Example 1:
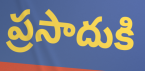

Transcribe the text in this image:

ప్రసాదుకి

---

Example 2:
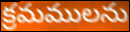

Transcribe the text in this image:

క్రమములను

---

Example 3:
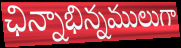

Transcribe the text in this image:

ఛిన్నాభిన్నములుగా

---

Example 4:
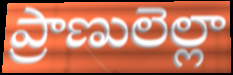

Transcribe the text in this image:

ప్రాణులెల్లా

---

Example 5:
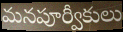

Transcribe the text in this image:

మనపూర్వీకులు